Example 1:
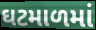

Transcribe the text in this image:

ઘટમાળમાં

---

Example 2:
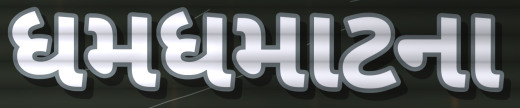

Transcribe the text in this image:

ધમધમાટના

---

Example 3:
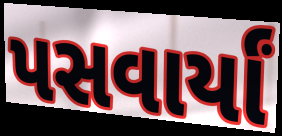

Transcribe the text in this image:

પસવાર્યાં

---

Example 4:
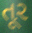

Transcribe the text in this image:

તૂર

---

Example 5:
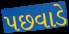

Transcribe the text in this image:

પછવાડે